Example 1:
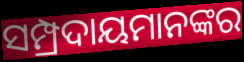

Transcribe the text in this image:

ସମ୍ପ୍ରଦାୟମାନଙ୍କର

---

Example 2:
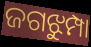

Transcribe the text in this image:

ଜଗଝୁମ୍ପା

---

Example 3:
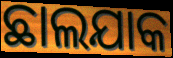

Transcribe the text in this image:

ଛାଲଯାକ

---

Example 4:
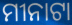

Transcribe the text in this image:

ମୀନାଟା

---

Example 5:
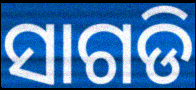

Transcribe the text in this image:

ସାଗଡି